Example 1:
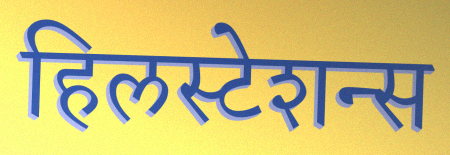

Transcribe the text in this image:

हिलस्टेशन्स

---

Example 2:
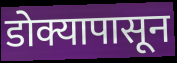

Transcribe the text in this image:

डोक्यापासून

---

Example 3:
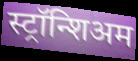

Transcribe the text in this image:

स्ट्रॉन्शिअम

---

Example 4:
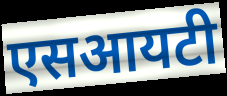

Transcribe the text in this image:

एसआयटी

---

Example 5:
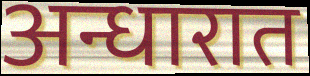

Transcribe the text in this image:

अन्धारात